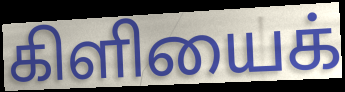
கிளியைக்